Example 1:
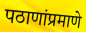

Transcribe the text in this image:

पठाणांप्रमाणे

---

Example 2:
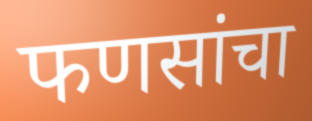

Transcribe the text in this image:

फणसांचा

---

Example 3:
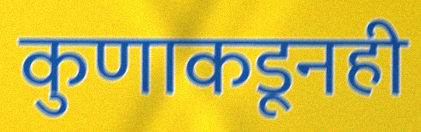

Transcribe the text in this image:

कुणाकडूनही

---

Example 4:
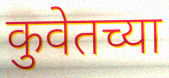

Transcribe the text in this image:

कुवेतच्या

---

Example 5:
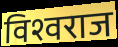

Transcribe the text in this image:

विश्वराज